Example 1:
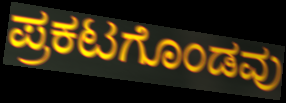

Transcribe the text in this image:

ಪ್ರಕಟಗೊಂಡವು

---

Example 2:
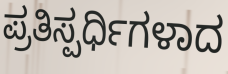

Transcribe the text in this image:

ಪ್ರತಿಸ್ಪರ್ಧಿಗಳಾದ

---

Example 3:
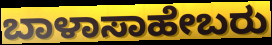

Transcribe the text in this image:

ಬಾಳಾಸಾಹೇಬರು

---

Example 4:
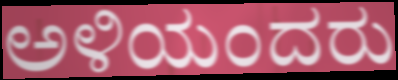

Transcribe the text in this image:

ಅಳಿಯಂದರು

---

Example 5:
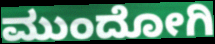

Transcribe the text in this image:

ಮುಂದೋಗಿ